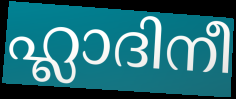
ഹ്ലാദിനീ